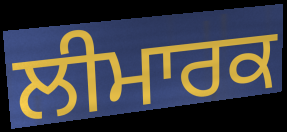
ਲੀਮਾਰਕ